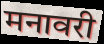
मनावरी